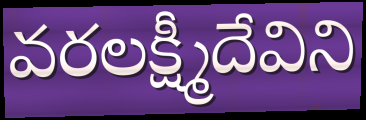
వరలక్ష్మీదేవిని